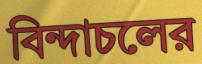
বিন্দাচলের